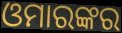
ଓମାରଙ୍କର